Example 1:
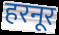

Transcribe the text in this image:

हरनूर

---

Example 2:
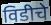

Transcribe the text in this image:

विडीचे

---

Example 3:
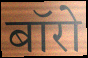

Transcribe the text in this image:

बॉरो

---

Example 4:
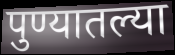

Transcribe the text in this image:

पुण्यातल्या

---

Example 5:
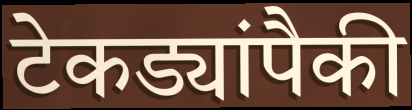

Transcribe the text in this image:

टेकड्यांपैकी